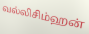
வல்லிசிம்ஹன்